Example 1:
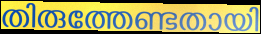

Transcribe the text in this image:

തിരുത്തേണ്ടതായി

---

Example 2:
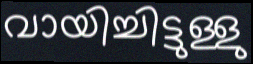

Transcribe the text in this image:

വായിച്ചിട്ടുള്ളു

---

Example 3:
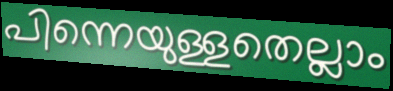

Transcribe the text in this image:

പിന്നെയുള്ളതെല്ലാം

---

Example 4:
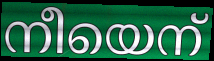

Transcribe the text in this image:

നീയെന്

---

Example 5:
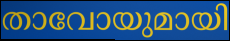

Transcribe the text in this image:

താവോയുമായി